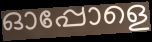
ഓപ്പോളെ